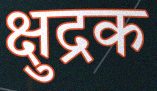
क्षुद्रक